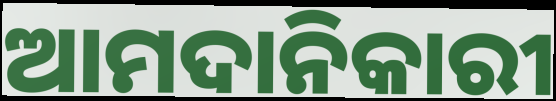
ଆମଦାନିକାରୀ